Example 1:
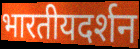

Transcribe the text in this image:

भारतीयदर्शन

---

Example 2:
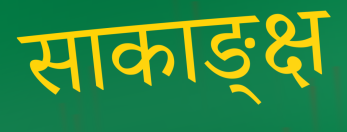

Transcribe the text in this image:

साकाङ्क्ष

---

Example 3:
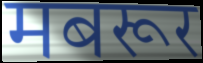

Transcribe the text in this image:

मबरूर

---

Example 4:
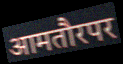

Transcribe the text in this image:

आमतौरपर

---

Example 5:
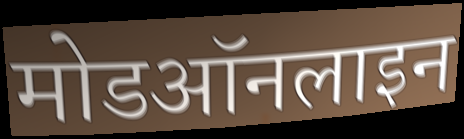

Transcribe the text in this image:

मोडऑनलाइन